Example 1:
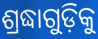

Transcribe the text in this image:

ଶ୍ରଦ୍ଧାଗୁଡ଼ିକୁ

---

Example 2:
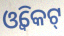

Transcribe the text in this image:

ଓ୍ଵିକେଟ୍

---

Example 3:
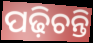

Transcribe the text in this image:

ପଢ଼ିଚନ୍ତି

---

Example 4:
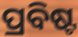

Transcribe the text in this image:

ପ୍ରବିଷ୍ଟ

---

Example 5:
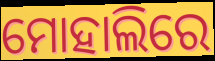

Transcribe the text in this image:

ମୋହାଲିରେ